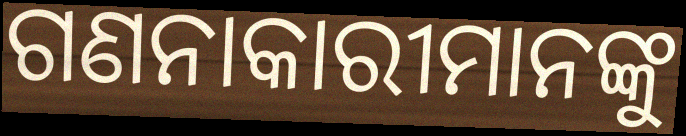
ଗଣନାକାରୀମାନଙ୍କୁ